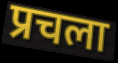
प्रचला